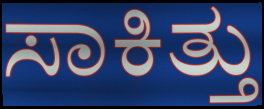
ಸಾಕಿತ್ತು